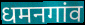
धमनगांव